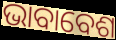
ଭାବାବେଶ